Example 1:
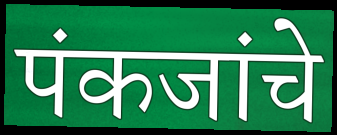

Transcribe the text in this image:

पंकजांचे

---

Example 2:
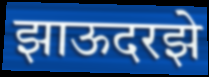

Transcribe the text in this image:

झाऊदरझे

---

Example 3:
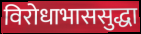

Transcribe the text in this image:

विरोधाभाससुद्धा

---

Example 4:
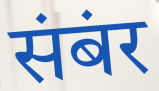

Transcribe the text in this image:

संबंर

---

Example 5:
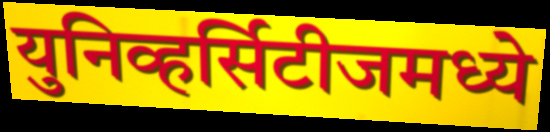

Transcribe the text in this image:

युनिव्हर्सिटीजमध्ये